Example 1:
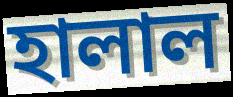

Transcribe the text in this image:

হালাল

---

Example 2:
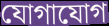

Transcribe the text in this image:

যোগাযোগ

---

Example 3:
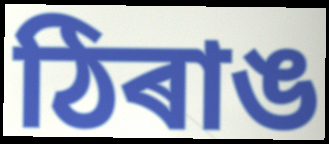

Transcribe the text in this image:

ঠিৰাঙ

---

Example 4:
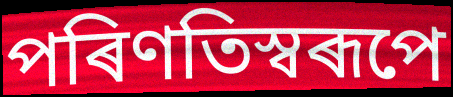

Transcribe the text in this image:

পৰিণতিস্বৰূপে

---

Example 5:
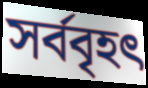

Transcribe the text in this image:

সৰ্ববৃহৎ